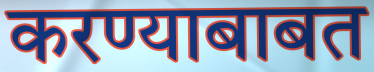
करण्याबाबत